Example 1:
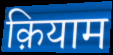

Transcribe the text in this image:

क़ियाम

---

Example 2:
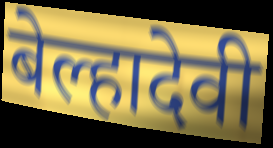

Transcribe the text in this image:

बेल्हादेवी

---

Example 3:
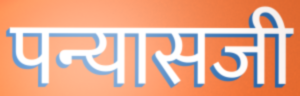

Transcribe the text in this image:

पन्यासजी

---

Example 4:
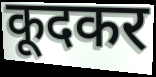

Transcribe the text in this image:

कूदकर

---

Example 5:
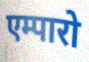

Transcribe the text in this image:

एम्पारो